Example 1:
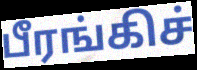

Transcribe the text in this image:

பீரங்கிச்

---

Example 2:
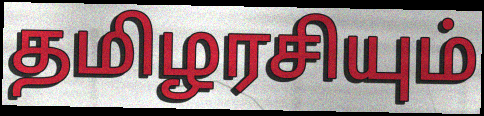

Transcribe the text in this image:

தமிழரசியும்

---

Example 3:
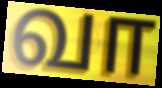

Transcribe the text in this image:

வா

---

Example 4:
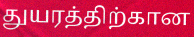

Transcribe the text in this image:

துயரத்திற்கான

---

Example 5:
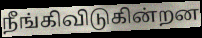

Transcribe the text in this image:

நீங்கிவிடுகின்றன